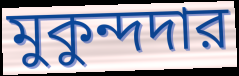
মুকুন্দদার